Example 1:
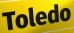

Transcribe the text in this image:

Toledo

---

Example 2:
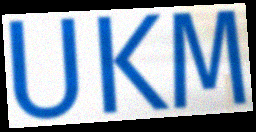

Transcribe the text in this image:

UKM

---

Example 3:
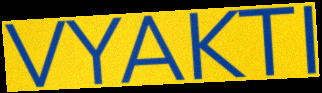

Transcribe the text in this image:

VYAKTI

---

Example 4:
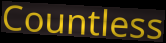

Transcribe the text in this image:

Countless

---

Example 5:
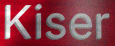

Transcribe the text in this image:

Kiser